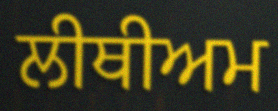
ਲੀਥੀਅਮ